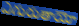
ఎగురుతాయో